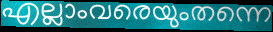
എല്ലാംവരെയുംതന്നെ